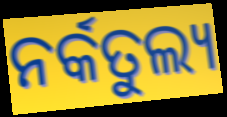
ନର୍କତୁଲ୍ୟ